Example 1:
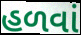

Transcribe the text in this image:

હળવાં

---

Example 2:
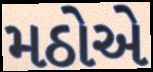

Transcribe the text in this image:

મઠોએ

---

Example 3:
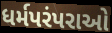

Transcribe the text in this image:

ધર્મપરંપરાઓ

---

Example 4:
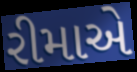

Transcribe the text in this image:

રીમાએ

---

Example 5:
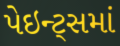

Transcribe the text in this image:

પેઇન્ટ્સમાં